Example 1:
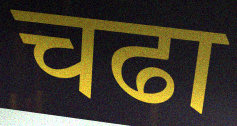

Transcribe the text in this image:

चढा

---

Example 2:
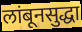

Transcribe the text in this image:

लांबूनसुद्धा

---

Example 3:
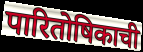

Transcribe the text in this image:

पारितोषिकाची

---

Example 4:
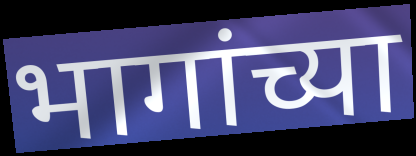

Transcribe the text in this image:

भागांच्या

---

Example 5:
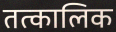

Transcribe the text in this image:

तत्कालिक